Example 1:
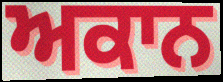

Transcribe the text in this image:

ਅਕਾਨ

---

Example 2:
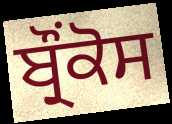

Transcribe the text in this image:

ਬ੍ਰੌਂਕੋਸ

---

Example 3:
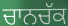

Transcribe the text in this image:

ਚਾਨਚੱਕ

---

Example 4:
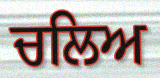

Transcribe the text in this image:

ਚਲਿਅ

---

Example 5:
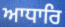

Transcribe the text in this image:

ਆਧਾਰਿ